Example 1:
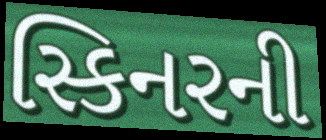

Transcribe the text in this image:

સ્કિનરની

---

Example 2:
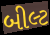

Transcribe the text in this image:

બીલ્ટ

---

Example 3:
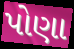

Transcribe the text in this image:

પોણા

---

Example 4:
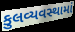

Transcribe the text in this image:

કુલવ્યવસ્થામાં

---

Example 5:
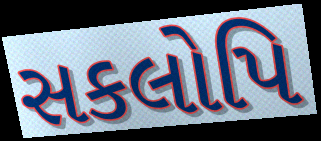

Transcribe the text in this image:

સકલોપિ